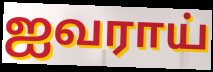
ஐவராய்